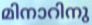
മിനാറിനു